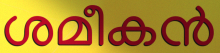
ശമീകൻ